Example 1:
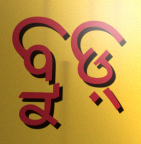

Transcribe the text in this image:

ବ୍ରୁଡ଼୍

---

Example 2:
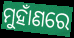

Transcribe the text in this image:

ମୁହାଁଣରେ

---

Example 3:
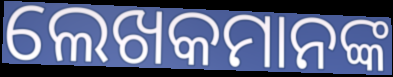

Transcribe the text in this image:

ଲେଖକମାନଙ୍କ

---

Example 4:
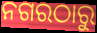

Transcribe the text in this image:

ନଗରଠାରୁ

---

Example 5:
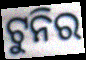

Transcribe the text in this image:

ଟୁନିର